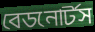
বেডনোর্টস